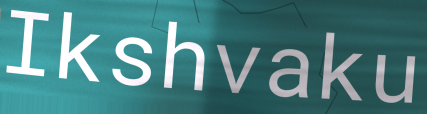
Ikshvaku